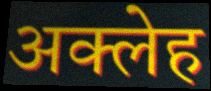
अक्लेह